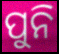
ପୁନି